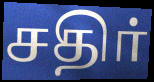
சதிர்